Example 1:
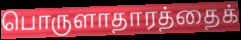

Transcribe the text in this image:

பொருளாதாரத்தைக்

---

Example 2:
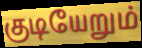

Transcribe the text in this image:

குடியேறும்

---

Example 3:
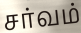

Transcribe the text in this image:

சர்வம்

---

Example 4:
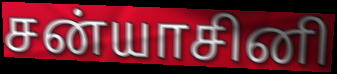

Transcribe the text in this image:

சன்யாசினி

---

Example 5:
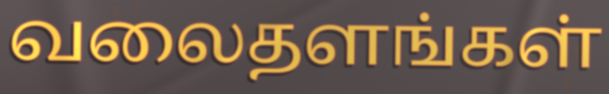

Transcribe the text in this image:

வலைதளங்கள்